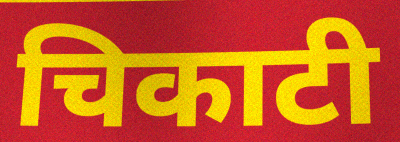
चिकाटी